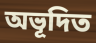
অভূদিত